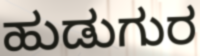
ಹುಡುಗುರ